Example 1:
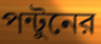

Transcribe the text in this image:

পন্টুনের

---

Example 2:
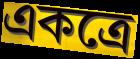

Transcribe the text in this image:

একত্রে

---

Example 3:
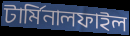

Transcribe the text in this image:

টার্মিনালফাইল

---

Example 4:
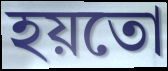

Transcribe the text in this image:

হয়তো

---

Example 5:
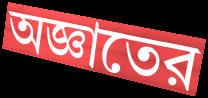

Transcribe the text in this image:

অজ্ঞাতের